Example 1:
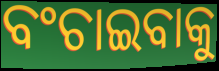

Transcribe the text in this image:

ବଂଚାଇବାକୁ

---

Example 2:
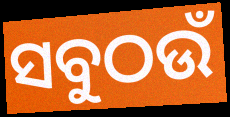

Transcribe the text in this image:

ସବୁଠଉଁ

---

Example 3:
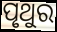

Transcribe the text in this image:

ପୃଥୁର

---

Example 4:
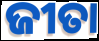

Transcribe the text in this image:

ଜୀତା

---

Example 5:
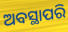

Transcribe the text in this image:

ଅବସ୍ଥାପରି